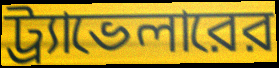
ট্র্যাভেলারের